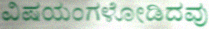
ವಿಷಯಂಗಳೋಡಿದವು